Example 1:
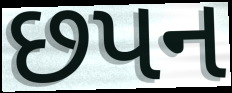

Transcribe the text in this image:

છપન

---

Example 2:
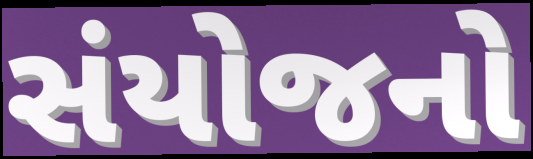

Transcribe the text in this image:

સંયોજનો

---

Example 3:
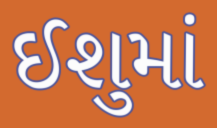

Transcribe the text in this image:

ઈશુમાં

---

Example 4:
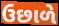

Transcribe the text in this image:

ઉછાળે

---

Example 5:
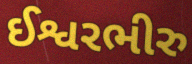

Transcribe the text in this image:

ઈશ્વરભીરુ